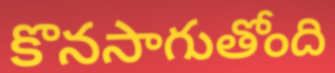
కొనసాగుతోంది